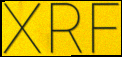
XRF